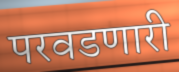
परवडणारी